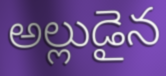
అల్లుడైన